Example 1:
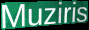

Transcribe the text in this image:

Muziris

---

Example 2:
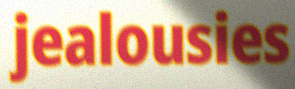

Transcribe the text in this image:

jealousies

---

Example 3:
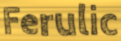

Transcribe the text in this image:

Ferulic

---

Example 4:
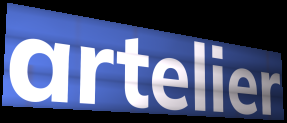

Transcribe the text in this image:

artelier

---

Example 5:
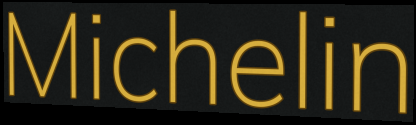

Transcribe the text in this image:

Michelin